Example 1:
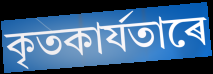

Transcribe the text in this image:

কৃতকাৰ্যতাৰে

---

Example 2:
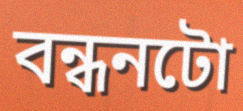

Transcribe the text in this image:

বন্ধনটো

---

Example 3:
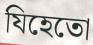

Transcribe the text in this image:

যিহেতো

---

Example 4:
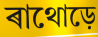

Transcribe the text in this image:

ৰাথোড়ে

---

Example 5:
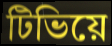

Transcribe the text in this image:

টিভিয়ে